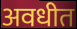
अवधीत